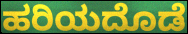
ಹರಿಯದೊಡೆ